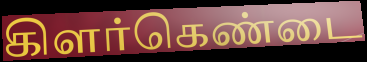
கிளர்கெண்டை